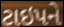
ટાઇપને